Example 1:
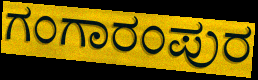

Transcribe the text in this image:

ಗಂಗಾರಂಪುರ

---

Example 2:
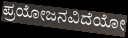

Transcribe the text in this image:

ಪ್ರಯೋಜನವಿದೆಯೋ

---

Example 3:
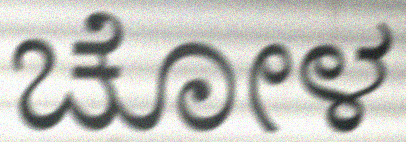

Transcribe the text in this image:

ಚೋಳ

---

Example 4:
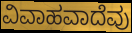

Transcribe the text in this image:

ವಿವಾಹವಾದೆವು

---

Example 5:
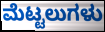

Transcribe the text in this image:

ಮೆಟ್ಟಲುಗಳು